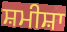
ਸ਼ਮੀਸ਼ਾ